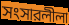
সংসারলীলা